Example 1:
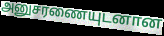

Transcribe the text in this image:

அனுசரணையுடனான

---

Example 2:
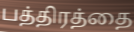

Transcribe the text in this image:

பத்திரத்தை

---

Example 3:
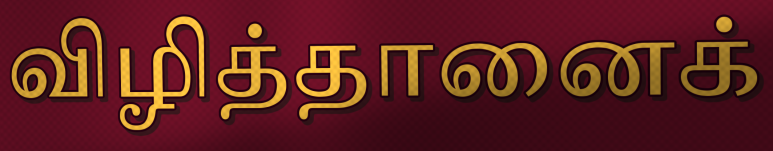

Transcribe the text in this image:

விழித்தானைக்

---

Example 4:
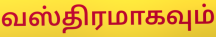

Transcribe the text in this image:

வஸ்திரமாகவும்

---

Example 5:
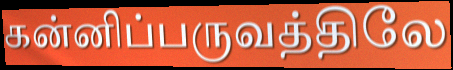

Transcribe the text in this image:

கன்னிப்பருவத்திலே